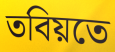
তবিয়তে